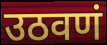
उठवणं